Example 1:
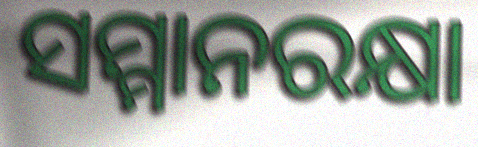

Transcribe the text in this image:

ସମ୍ମାନରକ୍ଷା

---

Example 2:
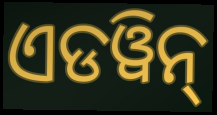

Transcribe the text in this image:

ଏଡୱିନ୍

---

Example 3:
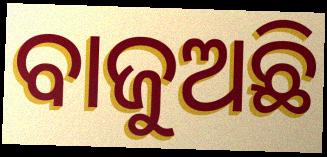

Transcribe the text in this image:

ବାଜୁଅଛି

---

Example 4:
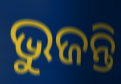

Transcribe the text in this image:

ଭୁଜନ୍ତି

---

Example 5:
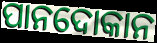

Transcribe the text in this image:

ପାନଦୋକାନ